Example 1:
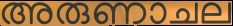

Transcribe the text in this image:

അരുണാചല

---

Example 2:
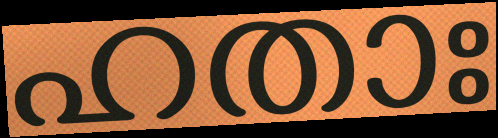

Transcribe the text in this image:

ഹതാഃ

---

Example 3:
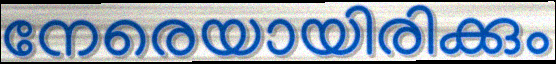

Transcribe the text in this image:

നേരെയായിരിക്കും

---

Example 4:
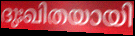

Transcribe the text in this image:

ദുഃഖിതയായി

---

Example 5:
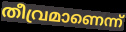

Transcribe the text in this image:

തീവ്രമാണെന്ന്